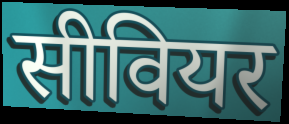
सीवियर